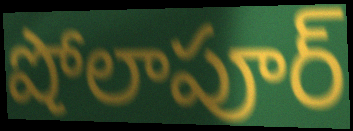
షోలాపూర్